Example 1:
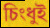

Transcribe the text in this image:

চিংধুই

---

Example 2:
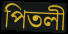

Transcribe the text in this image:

পিতলী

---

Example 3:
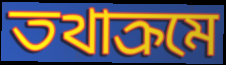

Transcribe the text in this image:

তথাক্ৰমে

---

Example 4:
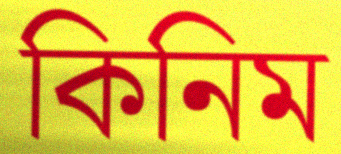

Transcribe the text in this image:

কিনিম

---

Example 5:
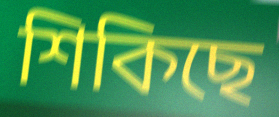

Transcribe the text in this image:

শিকিছে